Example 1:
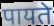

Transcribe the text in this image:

पायते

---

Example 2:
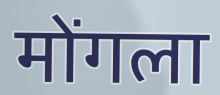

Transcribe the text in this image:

मोंगला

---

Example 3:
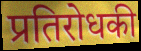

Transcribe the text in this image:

प्रतिरोधकी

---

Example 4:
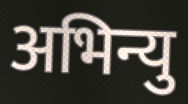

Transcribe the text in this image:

अभिन्यु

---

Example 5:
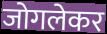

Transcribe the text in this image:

जोगलेकर